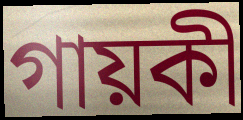
গায়কী